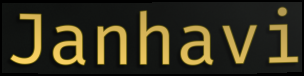
Janhavi